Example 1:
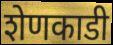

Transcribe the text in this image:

शेणकाडी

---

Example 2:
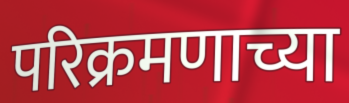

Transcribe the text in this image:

परिक्रमणाच्या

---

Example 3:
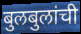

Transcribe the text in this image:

बुलबुलांची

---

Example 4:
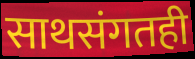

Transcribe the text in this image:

साथसंगतही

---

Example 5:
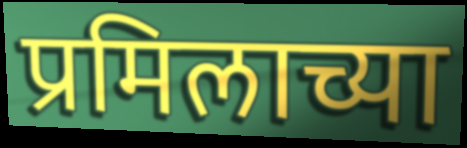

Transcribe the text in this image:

प्रमिलाच्या